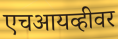
एचआयव्हीवर